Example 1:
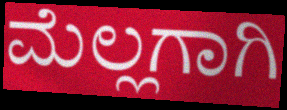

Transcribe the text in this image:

ಮೆಲ್ಲಗಾಗಿ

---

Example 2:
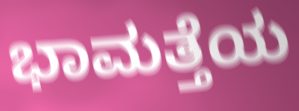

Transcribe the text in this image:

ಭಾಮತ್ತೆಯ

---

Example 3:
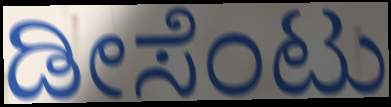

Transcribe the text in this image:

ಡೀಸೆಂಟು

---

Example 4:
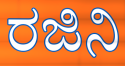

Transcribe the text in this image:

ರಜಿನಿ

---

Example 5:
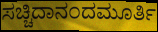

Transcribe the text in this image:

ಸಚ್ಚಿದಾನಂದಮೂರ್ತಿ